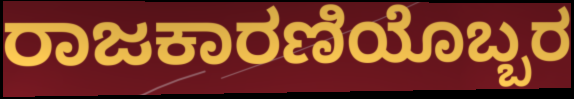
ರಾಜಕಾರಣಿಯೊಬ್ಬರ